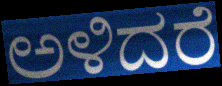
ಅಳಿದರೆ